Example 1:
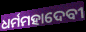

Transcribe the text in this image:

ଧର୍ମମହାଦେବୀ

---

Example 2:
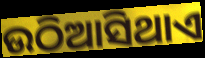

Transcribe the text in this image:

ଉଠିଆସିଥାଏ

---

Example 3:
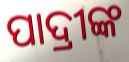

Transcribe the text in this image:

ପାଦ୍ରୀଙ୍କ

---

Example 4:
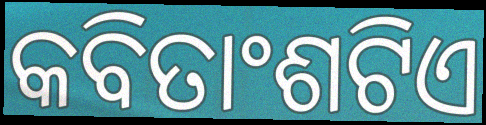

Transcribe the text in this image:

କବିତାଂଶଟିଏ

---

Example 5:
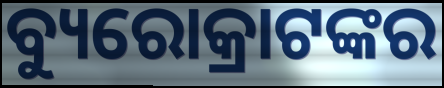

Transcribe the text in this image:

ବ୍ୟୁରୋକ୍ରାଟଙ୍କର